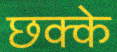
छक्के